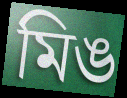
মিঙ